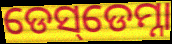
ଡେସ୍‌ଡେମ୍ନା